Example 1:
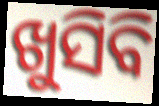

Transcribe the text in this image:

ଖୁସିବି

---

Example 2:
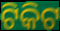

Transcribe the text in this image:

ଟିକିଟ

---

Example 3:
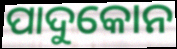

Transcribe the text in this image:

ପାଦୁକୋନ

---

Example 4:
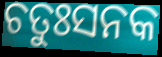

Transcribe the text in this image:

ଚତୁଃସନକ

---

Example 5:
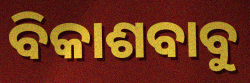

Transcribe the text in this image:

ବିକାଶବାବୁ